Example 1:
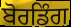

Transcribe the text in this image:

ਬੋਰਡਿੰਗ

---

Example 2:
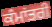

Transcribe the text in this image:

ਕੰਮਾਂਤਰੀ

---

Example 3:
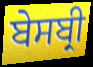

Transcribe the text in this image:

ਬੇਸਬ੍ਰੀ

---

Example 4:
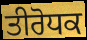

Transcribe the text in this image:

ਤੀਰੋਧਕ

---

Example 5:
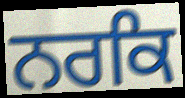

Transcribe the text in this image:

ਨਰਕਿ